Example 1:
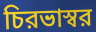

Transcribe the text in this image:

চিরভাস্বর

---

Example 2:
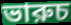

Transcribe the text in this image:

ভারুচ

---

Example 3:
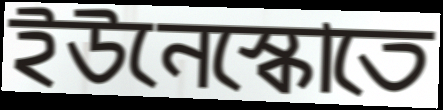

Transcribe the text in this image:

ইউনেস্কোতে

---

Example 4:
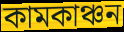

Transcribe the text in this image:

কামকাঞ্চন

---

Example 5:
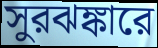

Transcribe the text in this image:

সুরঝঙ্কারে